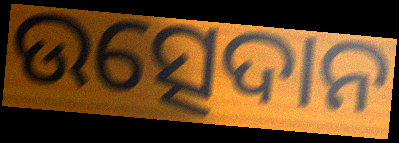
ଉତ୍ସେଦାନ